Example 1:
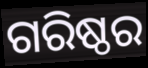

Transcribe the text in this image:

ଗରିଷ୍ଠର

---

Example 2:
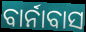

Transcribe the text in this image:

ବାର୍ନାବାସ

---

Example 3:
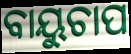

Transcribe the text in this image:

ବାୟୁଚାପ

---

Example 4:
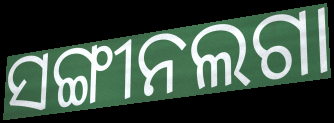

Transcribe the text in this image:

ସଙ୍ଗୀନଲଗା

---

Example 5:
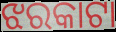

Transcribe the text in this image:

ଝରକାଟା